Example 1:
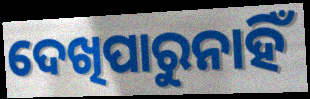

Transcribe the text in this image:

ଦେଖିପାରୁନାହିଁ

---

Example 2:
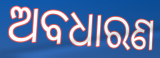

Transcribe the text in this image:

ଅବଧାରଣ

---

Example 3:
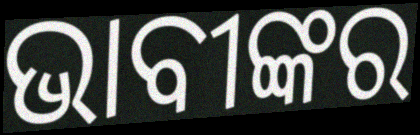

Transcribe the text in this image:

ଭାବୀଙ୍କର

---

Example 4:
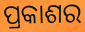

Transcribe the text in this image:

ପ୍ରକାଶର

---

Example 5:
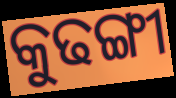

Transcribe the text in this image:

କୁଢଙ୍ଗୀ